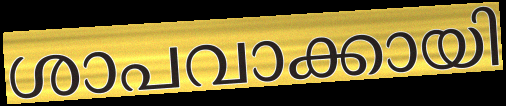
ശാപവാക്കായി